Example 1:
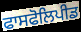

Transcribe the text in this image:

ਫਾਸਫੋਲਿਪੀਡ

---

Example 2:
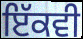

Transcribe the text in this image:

ਇੱਕਵੀ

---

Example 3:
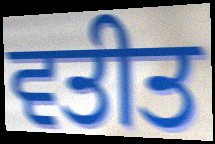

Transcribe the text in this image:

ਵਤੀਤ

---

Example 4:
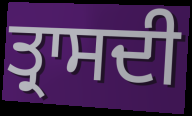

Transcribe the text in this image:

ਤ੍ਰਾਸਦੀ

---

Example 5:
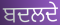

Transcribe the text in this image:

ਬਦਲਦੇ